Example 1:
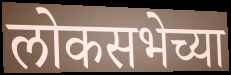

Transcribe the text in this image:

लोकसभेच्या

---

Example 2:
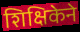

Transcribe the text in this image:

शिक्षिकेने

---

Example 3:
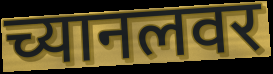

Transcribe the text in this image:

च्यानलवर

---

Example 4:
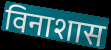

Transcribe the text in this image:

विनाशास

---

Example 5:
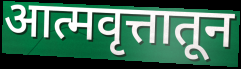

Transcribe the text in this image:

आत्मवृत्तातून